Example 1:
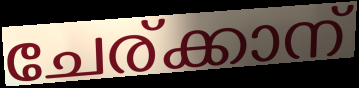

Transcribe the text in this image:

ചേര്ക്കാന്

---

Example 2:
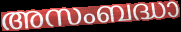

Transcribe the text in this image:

അസംബദ്ധാ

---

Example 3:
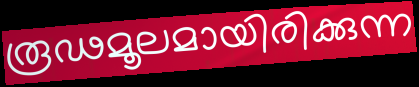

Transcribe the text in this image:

രൂഢമൂലമായിരിക്കുന്ന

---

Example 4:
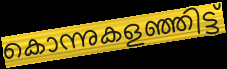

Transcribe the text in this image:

കൊന്നുകളഞ്ഞിട്ട്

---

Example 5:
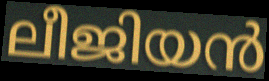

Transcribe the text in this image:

ലീജിയൻ